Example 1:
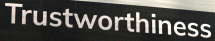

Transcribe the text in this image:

Trustworthiness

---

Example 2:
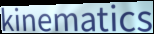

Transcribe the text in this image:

kinematics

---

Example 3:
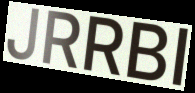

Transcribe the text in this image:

JRRBl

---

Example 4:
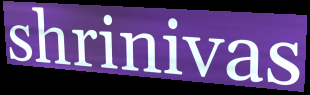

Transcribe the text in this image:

shrinivas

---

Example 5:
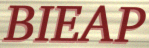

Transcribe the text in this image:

BIEAP